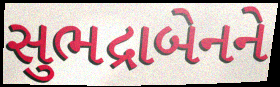
સુભદ્રાબેનને